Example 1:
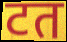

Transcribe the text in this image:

टत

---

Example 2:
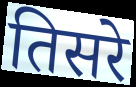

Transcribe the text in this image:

तिसरे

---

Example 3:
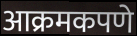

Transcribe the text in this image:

आक्रमकपणे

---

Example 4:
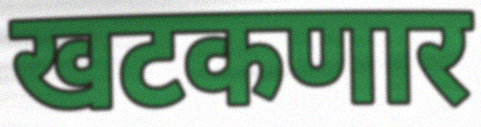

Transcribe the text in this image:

खटकणार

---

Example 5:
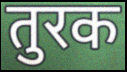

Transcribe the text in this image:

तुरक